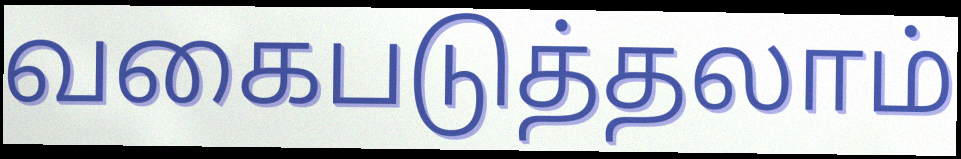
வகைபடுத்தலாம்